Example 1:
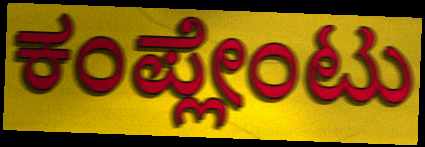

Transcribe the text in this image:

ಕಂಪ್ಲೇಂಟು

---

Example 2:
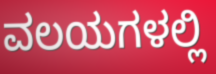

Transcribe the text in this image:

ವಲಯಗಳಲ್ಲಿ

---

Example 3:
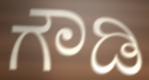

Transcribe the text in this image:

ಗೌಡಿ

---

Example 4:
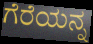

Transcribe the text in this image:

ಗೆರೆಯನ್ನ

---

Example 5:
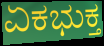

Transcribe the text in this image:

ಏಕಭುಕ್ತ